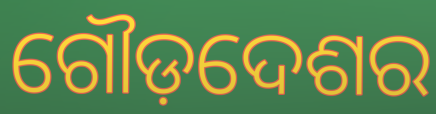
ଗୌଡ଼ଦେଶର